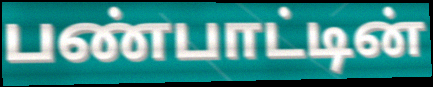
பண்பாட்டின்